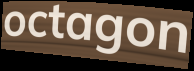
octagon